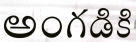
అంగడికి